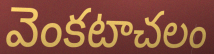
వెంకటాచలం